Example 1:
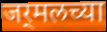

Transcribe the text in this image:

जर्मलच्या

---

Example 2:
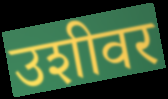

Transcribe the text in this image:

उशीवर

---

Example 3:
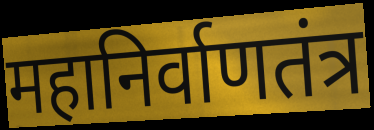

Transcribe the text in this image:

महानिर्वाणतंत्र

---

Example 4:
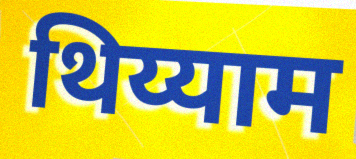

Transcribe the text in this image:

थिय्याम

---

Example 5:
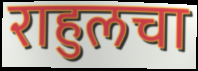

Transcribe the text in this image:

राहुलचा